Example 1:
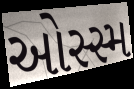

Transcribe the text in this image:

ઓસ્સ્મ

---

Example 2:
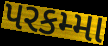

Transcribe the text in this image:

પરકમ્મા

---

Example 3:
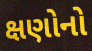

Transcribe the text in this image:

ક્ષણોનો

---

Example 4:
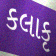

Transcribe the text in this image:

કલાકૃ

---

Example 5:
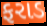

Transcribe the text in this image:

ફરાડ